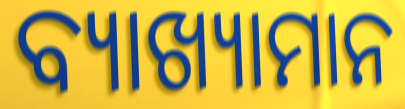
ବ୍ୟାଖ୍ୟାମାନ